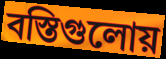
বস্তিগুলোয়